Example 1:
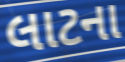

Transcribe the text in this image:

લાટના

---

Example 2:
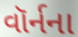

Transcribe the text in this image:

વૉર્નના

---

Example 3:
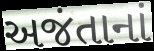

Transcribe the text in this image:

અજંતાનાં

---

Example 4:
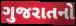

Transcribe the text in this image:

ગુજરાતનો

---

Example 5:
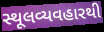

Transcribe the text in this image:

સ્થૂલવ્યવહારથી